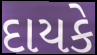
દાયકે